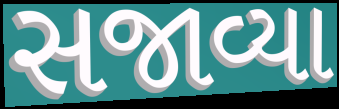
સજાવ્યા